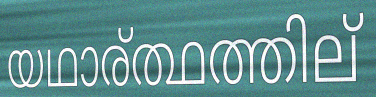
യഥാര്ത്ഥത്തില്